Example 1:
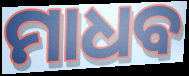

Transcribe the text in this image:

ମାଧବ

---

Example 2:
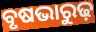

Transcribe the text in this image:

ବୃଷଭାରୁଢ଼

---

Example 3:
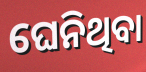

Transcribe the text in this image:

ଘେନିଥିବା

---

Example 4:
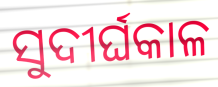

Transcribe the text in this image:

ସୁଦୀର୍ଘକାଳ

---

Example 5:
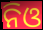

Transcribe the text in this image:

ନିଓ